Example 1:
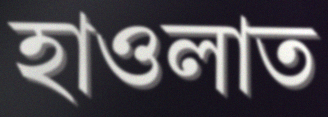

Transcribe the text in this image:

হাওলাত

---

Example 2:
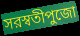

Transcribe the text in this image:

সরস্বতীপুজো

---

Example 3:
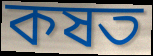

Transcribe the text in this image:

কষত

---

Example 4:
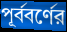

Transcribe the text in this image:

পূর্ববর্ণের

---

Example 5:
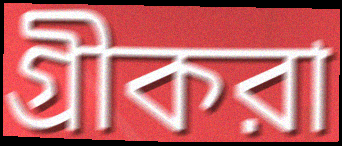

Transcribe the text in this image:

গ্রীকরা